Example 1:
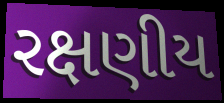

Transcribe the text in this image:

રક્ષણીય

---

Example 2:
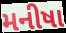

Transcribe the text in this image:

મનીષા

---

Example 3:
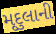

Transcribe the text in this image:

મૃદુલાની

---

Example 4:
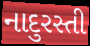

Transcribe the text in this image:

નાદુરસ્તી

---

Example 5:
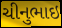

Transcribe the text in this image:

ચીનુભાઇ